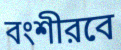
বংশীরবে